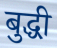
बुद्धी